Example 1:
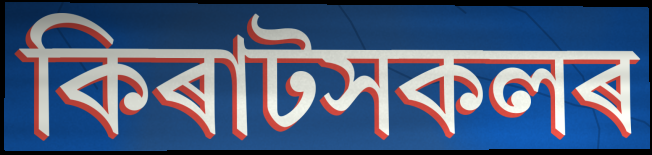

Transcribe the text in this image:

কিৰাটসকলৰ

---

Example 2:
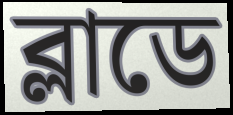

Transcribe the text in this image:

ব্লাডে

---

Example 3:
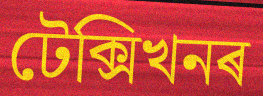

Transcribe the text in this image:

টেক্সিখনৰ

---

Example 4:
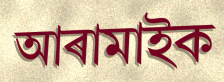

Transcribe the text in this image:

আৰামাইক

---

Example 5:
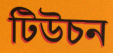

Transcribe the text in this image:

টিউচন